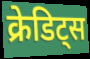
क्रेडिट्स